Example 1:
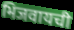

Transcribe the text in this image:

भिजवायची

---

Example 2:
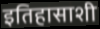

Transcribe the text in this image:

इतिहासाशी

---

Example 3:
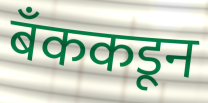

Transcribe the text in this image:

बँककडून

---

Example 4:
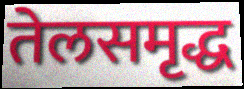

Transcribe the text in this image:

तेलसमृद्ध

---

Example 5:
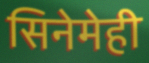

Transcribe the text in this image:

सिनेमेही